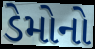
ડેમોનો